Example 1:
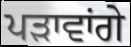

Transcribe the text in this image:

ਪੜਾਵਾਂਗੇ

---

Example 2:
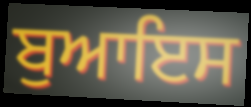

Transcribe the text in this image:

ਬੁਆਇਸ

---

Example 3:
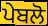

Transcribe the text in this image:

ਪੇਬਲੋ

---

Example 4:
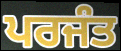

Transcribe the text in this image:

ਪਰਜੰਤ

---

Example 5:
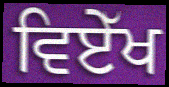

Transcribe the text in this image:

ਵਿਏੱਖ